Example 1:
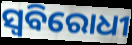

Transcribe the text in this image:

ସ୍ୱବିରୋଧୀ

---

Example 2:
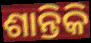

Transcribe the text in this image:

ଶାନ୍ତିକି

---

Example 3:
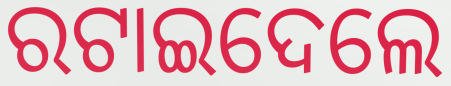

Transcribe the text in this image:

ରଟାଇଦେଲେ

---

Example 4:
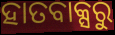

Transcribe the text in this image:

ହାତବାକ୍ସରୁ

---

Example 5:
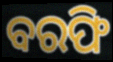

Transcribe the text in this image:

ବରଫି